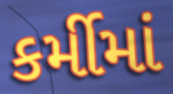
કર્મીમાં